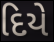
દિયે